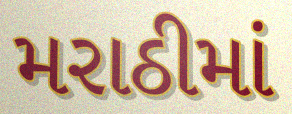
મરાઠીમાં